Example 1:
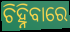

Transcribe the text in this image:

ଚିହ୍ନିବାରେ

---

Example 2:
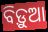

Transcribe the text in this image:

ବିଡ଼ୁଆ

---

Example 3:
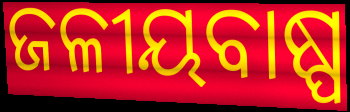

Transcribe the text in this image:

ଜଳୀୟବାଷ୍ପ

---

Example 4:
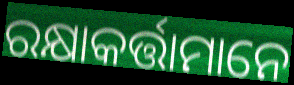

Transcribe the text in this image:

ରକ୍ଷାକର୍ତ୍ତାମାନେ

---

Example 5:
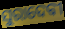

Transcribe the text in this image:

ସୁରାଦେବୀ